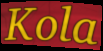
Kola